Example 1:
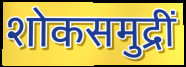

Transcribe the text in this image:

शोकसमुद्रीं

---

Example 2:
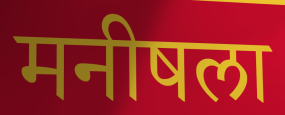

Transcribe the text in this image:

मनीषला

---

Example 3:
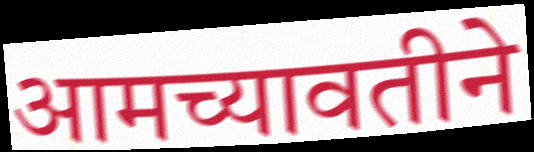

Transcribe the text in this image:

आमच्यावतीने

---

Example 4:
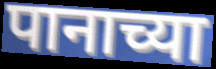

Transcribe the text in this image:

पानाच्या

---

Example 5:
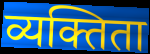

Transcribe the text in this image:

व्यक्तिता